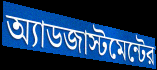
অ্যাডজাস্টমেন্টের